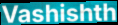
Vashishth